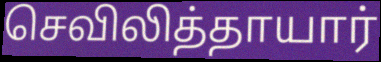
செவிலித்தாயார்